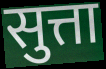
सुत्ता